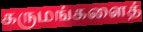
கருமங்களைத்